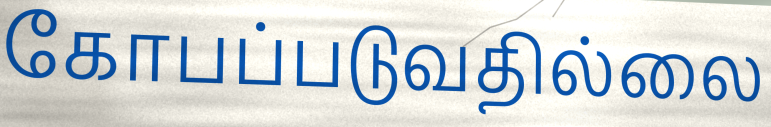
கோபப்படுவதில்லை